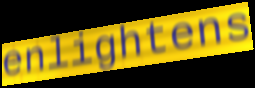
enlightens